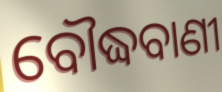
ବୌଦ୍ଧବାଣୀ